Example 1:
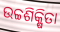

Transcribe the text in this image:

ଉଚ୍ଚଶିକ୍ଷିତା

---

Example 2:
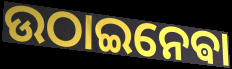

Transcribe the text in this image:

ଉଠାଇନେଵା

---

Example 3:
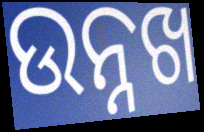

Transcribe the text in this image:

ଉନ୍ନଖ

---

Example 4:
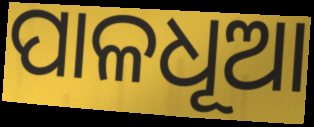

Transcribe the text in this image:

ପାଳଧୂଆ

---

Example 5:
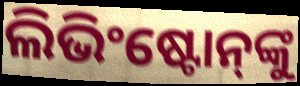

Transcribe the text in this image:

ଲିଭିଂଷ୍ଟୋନ୍‌ଙ୍କୁ